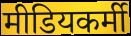
मीडियकर्मी